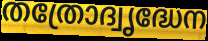
തത്രോദ്വൃദ്ധേന